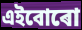
এইবোৰো